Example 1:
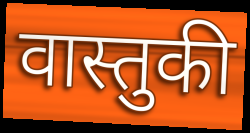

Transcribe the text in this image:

वास्तुकी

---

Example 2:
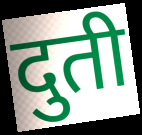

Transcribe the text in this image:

दुती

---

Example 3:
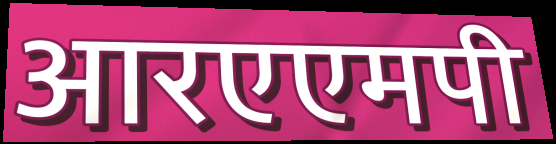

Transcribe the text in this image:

आरएएमपी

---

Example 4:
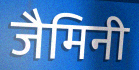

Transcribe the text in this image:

जैमिनी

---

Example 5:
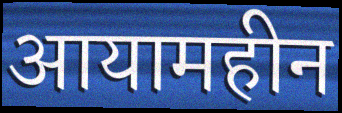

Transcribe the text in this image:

आयामहीन